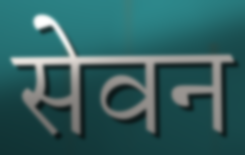
सेवन